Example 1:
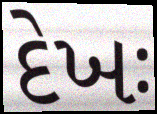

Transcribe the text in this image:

દેખઃ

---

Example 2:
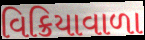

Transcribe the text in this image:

વિક્રિયાવાળા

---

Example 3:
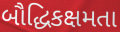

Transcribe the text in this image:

બૌદ્ધિકક્ષમતા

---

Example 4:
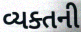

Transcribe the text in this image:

વ્યક્તની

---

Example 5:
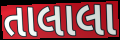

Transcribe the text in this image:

તાલાલા